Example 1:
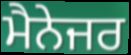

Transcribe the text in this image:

ਮੈਨੇਜਰ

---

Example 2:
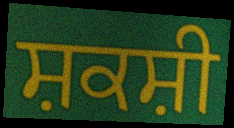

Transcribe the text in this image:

ਸ਼ਕਸ਼ੀ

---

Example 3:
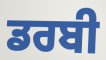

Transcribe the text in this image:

ਡਰਬੀ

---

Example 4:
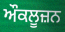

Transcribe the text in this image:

ਔਕਲੂਜ਼ਨ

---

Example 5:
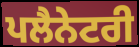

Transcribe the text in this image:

ਪਲੈਨੇਟਰੀ